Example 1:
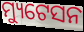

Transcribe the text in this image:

ମ୍ୟୁଟେସନ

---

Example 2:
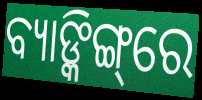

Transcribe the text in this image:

ବ୍ୟାଙ୍କିଙ୍ଗ୍‌ରେ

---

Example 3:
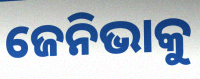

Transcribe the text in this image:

ଜେନିଭାକୁ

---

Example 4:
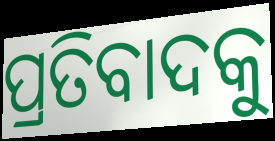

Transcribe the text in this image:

ପ୍ରତିବାଦକୁ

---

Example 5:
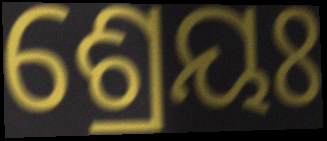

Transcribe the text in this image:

ଶ୍ରେୟଃ